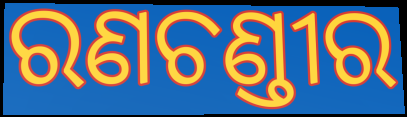
ରଣଚଣ୍ଡୀର